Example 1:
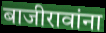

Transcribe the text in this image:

बाजीरावांना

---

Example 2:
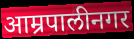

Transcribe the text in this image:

आम्रपालीनगर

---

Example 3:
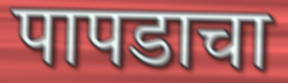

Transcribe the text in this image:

पापडाचा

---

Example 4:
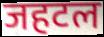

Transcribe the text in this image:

जहटल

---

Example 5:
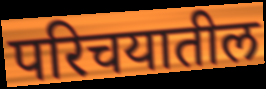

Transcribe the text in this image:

परिचयातील